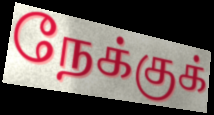
நேக்குக்